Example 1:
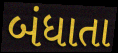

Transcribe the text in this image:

બંધાતા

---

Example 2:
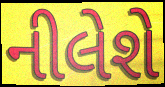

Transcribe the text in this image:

નીલેશે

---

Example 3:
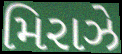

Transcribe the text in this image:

મિરાઝે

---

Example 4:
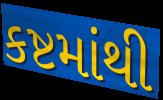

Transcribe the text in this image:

કષ્ટમાંથી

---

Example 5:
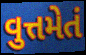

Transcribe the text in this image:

વુત્તમેતં